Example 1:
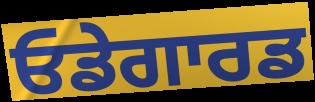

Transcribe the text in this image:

ਓਡੇਗਾਰਡ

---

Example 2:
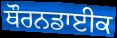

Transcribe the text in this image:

ਥੌਰਨਡਾਈਕ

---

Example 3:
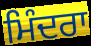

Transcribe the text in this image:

ਮਿੰਦਰਾ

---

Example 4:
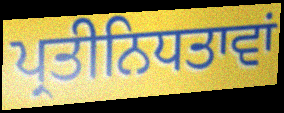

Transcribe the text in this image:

ਪ੍ਰਤੀਨਿਧਤਾਵਾਂ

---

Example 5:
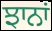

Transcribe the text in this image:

ਝਾਨਾਂ